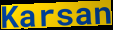
Karsan